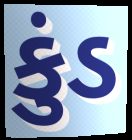
કુંડ